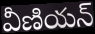
వీణియన్